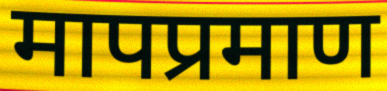
मापप्रमाण